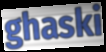
ghaski